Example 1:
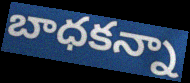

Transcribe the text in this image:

బాధకన్నా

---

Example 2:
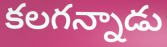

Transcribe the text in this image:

కలగన్నాడు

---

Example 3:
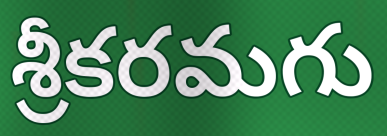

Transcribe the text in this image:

శ్రీకరమగు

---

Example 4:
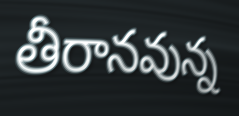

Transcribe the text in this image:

తీరానవున్న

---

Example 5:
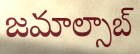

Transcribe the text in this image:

జమాల్సాబ్